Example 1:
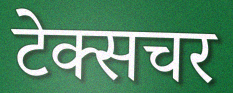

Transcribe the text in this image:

टेक्सचर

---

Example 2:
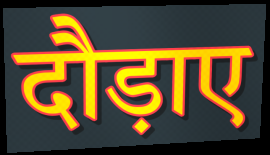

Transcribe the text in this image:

दौड़ाए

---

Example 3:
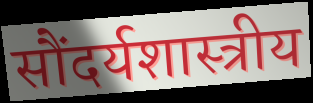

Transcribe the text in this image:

सौंदर्यशास्त्रीय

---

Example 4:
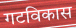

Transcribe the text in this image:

गटविकास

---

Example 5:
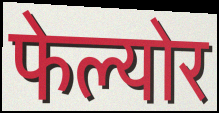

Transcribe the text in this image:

फेल्योर